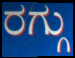
ರಗ್ಗು